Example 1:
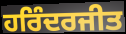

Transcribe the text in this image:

ਹਰਿੰਦਰਜੀਤ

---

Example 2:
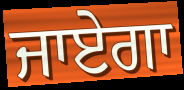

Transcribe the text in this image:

ਜਾਏਗਾ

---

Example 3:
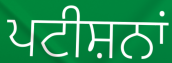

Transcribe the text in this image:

ਪਟੀਸ਼ਨਾਂ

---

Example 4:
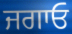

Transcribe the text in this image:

ਜਗਾਓ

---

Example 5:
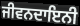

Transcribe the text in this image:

ਜੀਵਨਦਾਇਨੀ